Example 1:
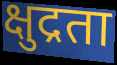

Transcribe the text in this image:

क्षुद्रता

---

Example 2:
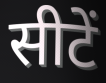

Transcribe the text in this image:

सीटें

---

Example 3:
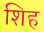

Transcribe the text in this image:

शिह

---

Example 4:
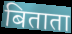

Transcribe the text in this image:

बिताता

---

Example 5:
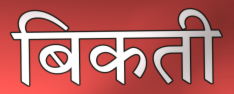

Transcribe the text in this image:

बिकती